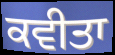
ਕਵੀਤਾ